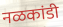
नळकांडी